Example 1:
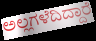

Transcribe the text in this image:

ಅಲ್ಲಗಳೆದಿದ್ದಾರೆ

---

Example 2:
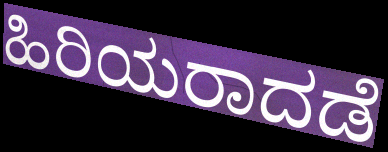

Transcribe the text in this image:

ಹಿರಿಯರಾದಡೆ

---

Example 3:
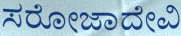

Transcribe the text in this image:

ಸರೋಜಾದೇವಿ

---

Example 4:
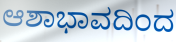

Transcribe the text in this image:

ಆಶಾಭಾವದಿಂದ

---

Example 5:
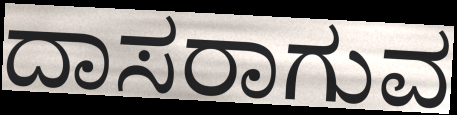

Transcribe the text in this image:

ದಾಸರಾಗುವ